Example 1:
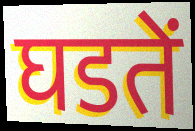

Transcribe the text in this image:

घडतें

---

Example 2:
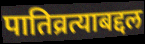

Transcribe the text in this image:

पातिव्रत्याबद्दल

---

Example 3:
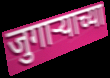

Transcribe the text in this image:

जुगाऱ्याच्या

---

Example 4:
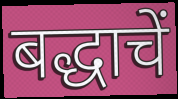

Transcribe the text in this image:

बद्धाचें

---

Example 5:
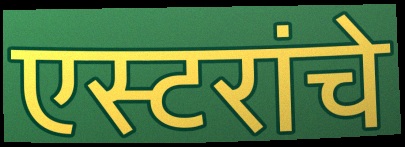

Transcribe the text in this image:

एस्टरांचे